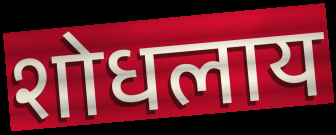
शोधलाय